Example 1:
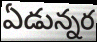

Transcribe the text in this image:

ఏడున్నర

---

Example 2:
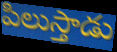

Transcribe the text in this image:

పిలుస్తాడు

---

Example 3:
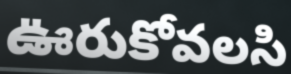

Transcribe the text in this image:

ఊరుకోవలసి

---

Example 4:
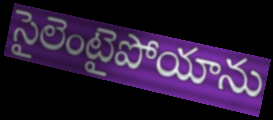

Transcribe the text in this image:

సైలెంటైపోయాను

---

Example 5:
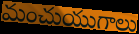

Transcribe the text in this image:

మంచుయుగాలు